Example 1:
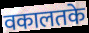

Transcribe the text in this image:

वकालतके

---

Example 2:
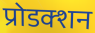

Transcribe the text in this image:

प्रोडक्‍शन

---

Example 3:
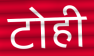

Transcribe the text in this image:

टोही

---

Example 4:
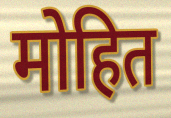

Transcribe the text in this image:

मोहित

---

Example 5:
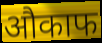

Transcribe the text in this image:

औकाफ